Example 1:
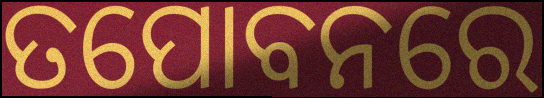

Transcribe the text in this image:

ତପୋବନରେ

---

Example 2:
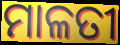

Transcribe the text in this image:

ମାଳତୀ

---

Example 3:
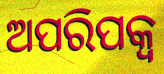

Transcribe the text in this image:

ଅପରିପକ୍ୱ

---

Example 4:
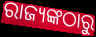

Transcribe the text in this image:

ରାଜ୍ୟଙ୍କଠାରୁ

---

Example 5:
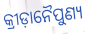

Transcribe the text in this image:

କ୍ରୀଡ଼ାନୈପୁଣ୍ୟ